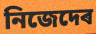
নিজেদেৰ